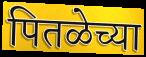
पितळेच्या